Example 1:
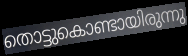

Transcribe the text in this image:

തൊട്ടുകൊണ്ടായിരുന്നു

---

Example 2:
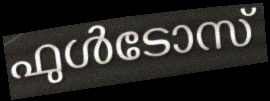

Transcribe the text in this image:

ഫുൾടോസ്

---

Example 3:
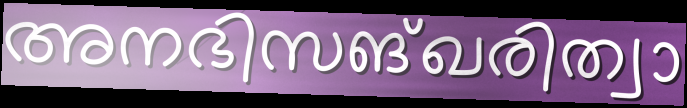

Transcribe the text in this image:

അനഭിസങ്ഖരിത്വാ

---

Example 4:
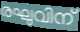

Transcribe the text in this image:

രഘുവിന്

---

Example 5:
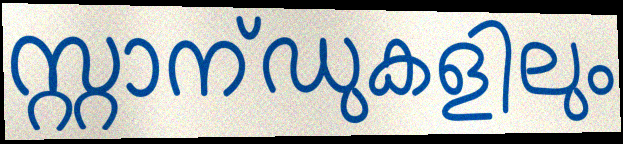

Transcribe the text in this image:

സ്റ്റാന്ഡുകളിലും